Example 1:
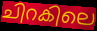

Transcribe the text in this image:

ചിറകിലെ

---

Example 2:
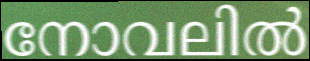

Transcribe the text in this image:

നോവലിൽ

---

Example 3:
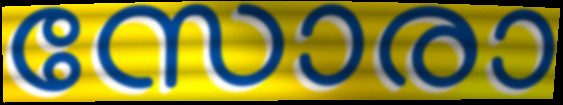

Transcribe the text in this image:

സോരാ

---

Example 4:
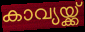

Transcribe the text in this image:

കാവ്യയ്ക്ക്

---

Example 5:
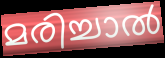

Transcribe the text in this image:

മരിച്ചാൽ